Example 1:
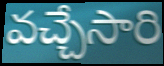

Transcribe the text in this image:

వచ్చేసారి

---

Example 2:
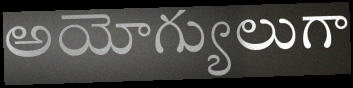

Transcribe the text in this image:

అయోగ్యులుగా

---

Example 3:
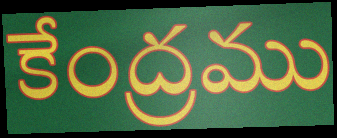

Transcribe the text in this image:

కేంద్రము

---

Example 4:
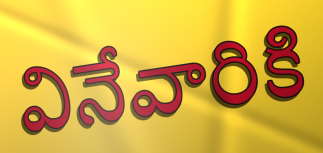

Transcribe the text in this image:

వినేవారికి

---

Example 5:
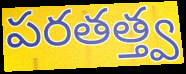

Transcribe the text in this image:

పరతత్త్వ